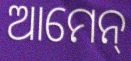
ଆମେନ୍